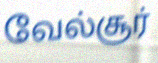
வேல்சூர்